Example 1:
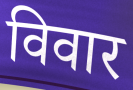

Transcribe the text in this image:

विवार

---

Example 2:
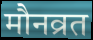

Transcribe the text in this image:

मौनव्रत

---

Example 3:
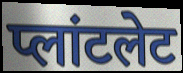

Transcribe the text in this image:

प्लांटलेट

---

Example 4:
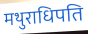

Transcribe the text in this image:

मथुराधिपति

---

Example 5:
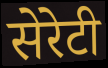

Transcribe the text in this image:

सेरेटी